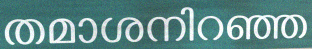
തമാശനിറഞ്ഞ